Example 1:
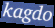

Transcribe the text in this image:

kagdo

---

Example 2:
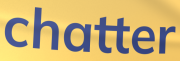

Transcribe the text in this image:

chatter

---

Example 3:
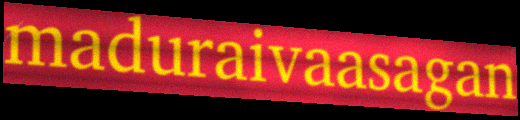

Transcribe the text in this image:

maduraivaasagan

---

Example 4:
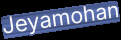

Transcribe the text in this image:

Jeyamohan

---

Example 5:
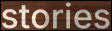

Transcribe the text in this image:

stories